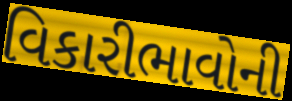
વિકારીભાવોની